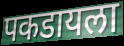
पकडायला